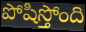
పోషిస్తోంది